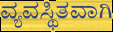
ವ್ಯವಸ್ಥಿತವಾಗಿ